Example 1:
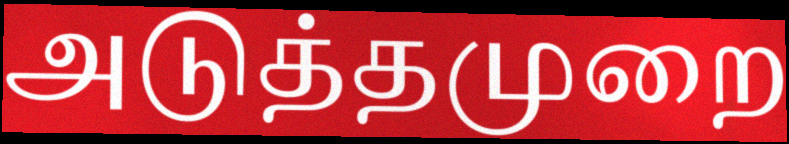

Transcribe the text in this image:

அடுத்தமுறை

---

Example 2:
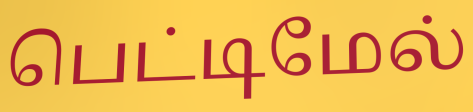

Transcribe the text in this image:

பெட்டிமேல்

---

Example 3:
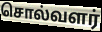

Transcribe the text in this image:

சொல்வளர்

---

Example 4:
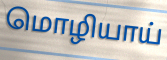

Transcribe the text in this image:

மொழியாய்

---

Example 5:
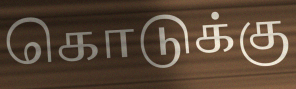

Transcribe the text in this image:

கொடுக்கு